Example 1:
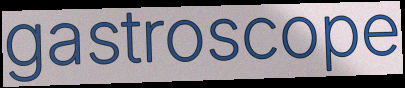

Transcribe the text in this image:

gastroscope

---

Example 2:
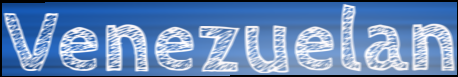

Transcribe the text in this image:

Venezuelan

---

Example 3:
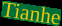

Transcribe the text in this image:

Tianhe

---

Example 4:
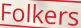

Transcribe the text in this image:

Folkers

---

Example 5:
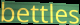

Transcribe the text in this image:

bettles